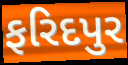
ફરિદપુર